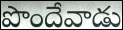
పొందేవాడు